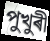
পুখুৰী